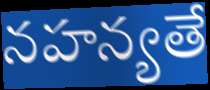
నహన్యతే